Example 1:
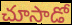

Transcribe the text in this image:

చూసాడో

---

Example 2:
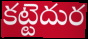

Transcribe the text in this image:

కట్టెదుర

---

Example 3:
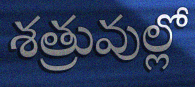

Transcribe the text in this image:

శత్రువుల్లో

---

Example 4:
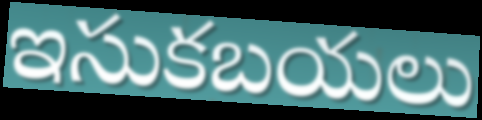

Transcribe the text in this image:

ఇసుకబయలు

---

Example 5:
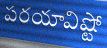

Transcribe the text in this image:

పరయావిష్టో